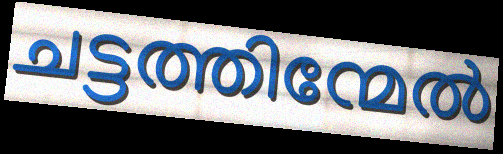
ചട്ടത്തിന്മേൽ